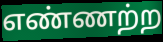
எண்ணற்ற